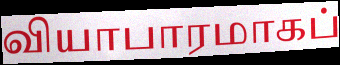
வியாபாரமாகப்